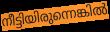
നീട്ടിയിരുന്നെങ്കിൽ